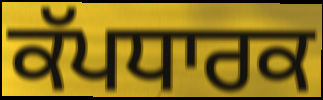
ਕੱਪਧਾਰਕ